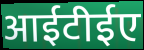
आईटीईए